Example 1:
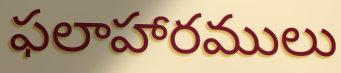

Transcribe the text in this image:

ఫలాహారములు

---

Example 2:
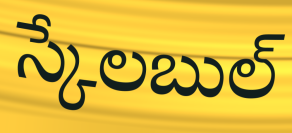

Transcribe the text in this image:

స్కేలబుల్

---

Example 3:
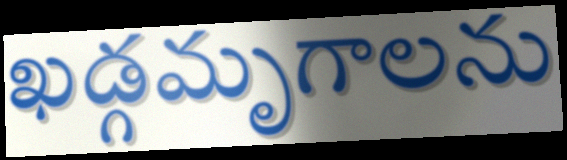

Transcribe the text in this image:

ఖడ్గమృగాలను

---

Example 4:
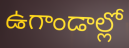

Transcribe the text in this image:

ఉగాండాల్లో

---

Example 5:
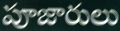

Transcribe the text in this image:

పూజారులు